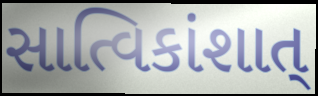
સાત્વિકાંશાત્